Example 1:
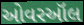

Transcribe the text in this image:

ઓવરઑલ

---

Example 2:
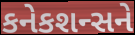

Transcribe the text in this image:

કનેકશન્સને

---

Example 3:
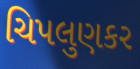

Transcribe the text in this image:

ચિપલુણકર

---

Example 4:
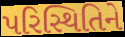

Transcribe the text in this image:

પરિસ્થિતિને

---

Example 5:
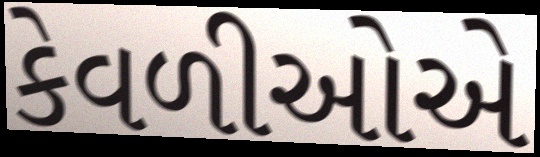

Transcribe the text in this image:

કેવળીઓએ